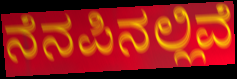
ನೆನಪಿನಲ್ಲಿವೆ